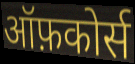
ऑफ़कोर्स